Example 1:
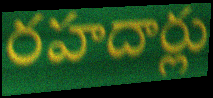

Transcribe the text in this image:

రహదార్లు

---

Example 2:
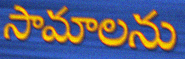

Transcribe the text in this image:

సామాలను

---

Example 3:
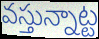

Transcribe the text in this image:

వస్తున్నాట్ట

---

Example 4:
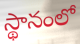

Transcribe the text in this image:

స్థానంలో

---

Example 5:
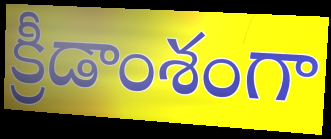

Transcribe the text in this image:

క్రీడాంశంగా